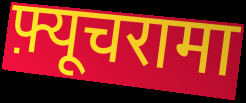
फ़्यूचरामा